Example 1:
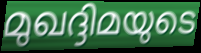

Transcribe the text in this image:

മുഖദ്ദിമയുടെ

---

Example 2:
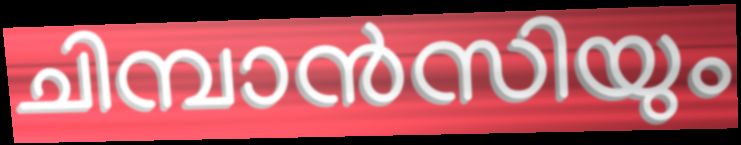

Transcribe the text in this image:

ചിമ്പാൻസിയും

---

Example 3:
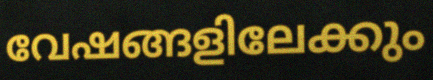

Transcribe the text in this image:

വേഷങ്ങളിലേക്കും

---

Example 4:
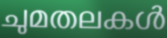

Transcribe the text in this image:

ചുമതലകൾ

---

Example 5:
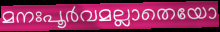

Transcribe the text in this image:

മനഃപൂർവമല്ലാതെയോ